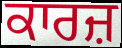
ਕਾਰਜ਼